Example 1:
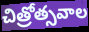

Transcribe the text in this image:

చిత్రోత్సవాల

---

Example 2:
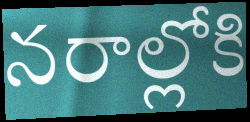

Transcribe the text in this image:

నరాల్లోకి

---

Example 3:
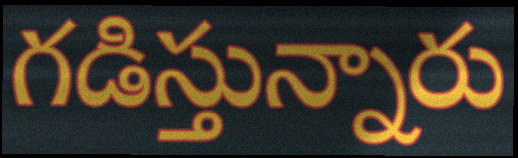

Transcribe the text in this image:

గడిస్తున్నారు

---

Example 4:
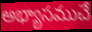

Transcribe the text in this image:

అభ్యాసముచే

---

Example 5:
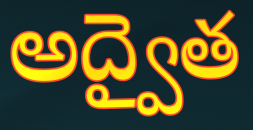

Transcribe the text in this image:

అద్వైత